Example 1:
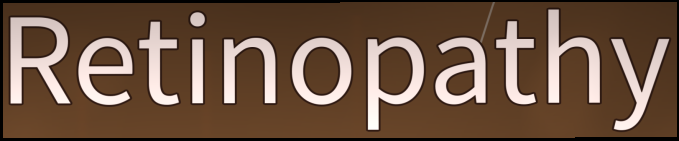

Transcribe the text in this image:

Retinopathy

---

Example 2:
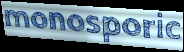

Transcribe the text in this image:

monosporic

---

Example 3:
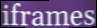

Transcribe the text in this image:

iframes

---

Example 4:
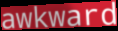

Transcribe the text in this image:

awkward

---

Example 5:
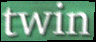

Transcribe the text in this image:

twin